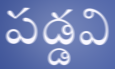
పడ్డవి